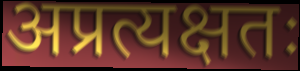
अप्रत्यक्षतः